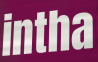
intha